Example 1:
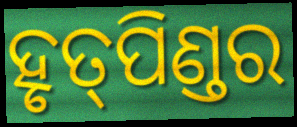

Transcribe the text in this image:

ହୃତ୍‌ପିଣ୍ଡର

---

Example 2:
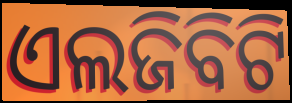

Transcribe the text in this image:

ଏଲଜିବିଟି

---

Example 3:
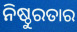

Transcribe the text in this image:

ନିଷ୍ଠୁରତାର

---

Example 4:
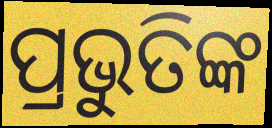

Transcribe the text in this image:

ପ୍ରଭୁତିଙ୍କ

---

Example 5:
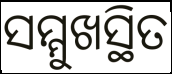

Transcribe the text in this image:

ସମ୍ମୁଖସ୍ଥିତ